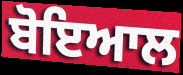
ਬੋਇਆਲ